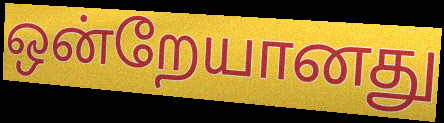
ஒன்றேயானது